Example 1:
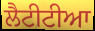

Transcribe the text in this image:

ਲੈਟੀਟੀਆ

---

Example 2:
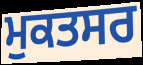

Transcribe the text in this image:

ਮੁਕਤਸਰ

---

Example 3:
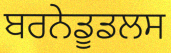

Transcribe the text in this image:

ਬਰਨੇਡੂਡਲਸ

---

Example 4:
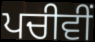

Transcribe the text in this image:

ਪਚੀਵੀਂ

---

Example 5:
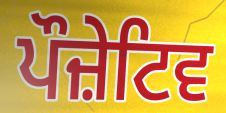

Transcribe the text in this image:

ਪੌਜ਼ੇਟਿਵ